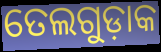
ତେଲଗୁଡ଼ାକ